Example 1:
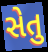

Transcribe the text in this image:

સેતુ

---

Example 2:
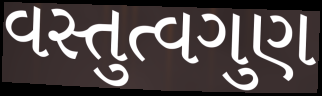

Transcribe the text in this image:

વસ્તુત્વગુણ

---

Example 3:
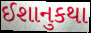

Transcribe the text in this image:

ઈશાનુકથા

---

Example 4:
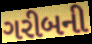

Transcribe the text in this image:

ગરીબની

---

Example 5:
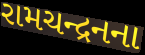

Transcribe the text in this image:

રામચન્દ્રનના